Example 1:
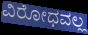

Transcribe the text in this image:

ವಿರೋಧವಲ್ಲ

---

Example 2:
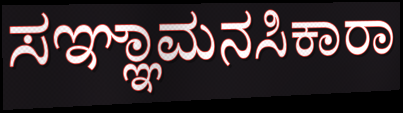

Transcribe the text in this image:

ಸಞ್ಞಾಮನಸಿಕಾರಾ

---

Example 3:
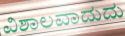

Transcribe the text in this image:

ವಿಶಾಲವಾದುದು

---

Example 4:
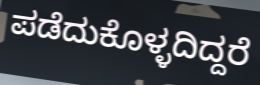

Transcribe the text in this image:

ಪಡೆದುಕೊಳ್ಳದಿದ್ದರೆ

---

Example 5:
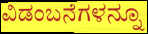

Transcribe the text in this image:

ವಿಡಂಬನೆಗಳನ್ನೂ